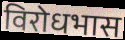
विरोधभास